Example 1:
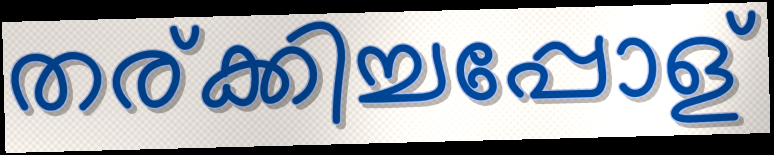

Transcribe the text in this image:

തര്ക്കിച്ചപ്പോള്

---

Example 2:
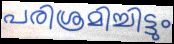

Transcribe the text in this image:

പരിശ്രമിച്ചിട്ടും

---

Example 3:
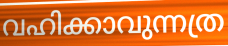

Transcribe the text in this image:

വഹിക്കാവുന്നത്ര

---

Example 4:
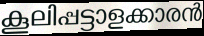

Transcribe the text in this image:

കൂലിപ്പട്ടാളക്കാരൻ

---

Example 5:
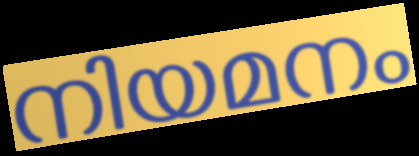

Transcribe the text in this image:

നിയമനം